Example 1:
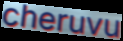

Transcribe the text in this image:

cheruvu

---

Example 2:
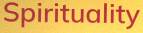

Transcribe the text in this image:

Spirituality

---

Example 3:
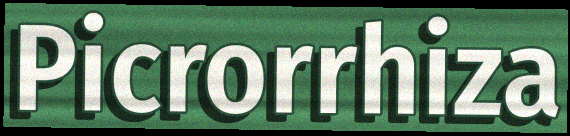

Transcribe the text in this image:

Picrorrhiza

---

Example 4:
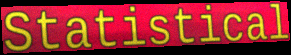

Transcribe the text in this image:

Statistical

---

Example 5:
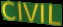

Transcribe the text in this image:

CIVIL